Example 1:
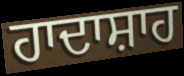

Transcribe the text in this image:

ਹਾਦਾਸ਼ਾਹ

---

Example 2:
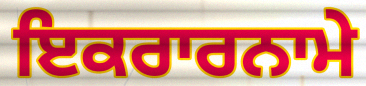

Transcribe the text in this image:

ਇਕਰਾਰਨਾਮੇ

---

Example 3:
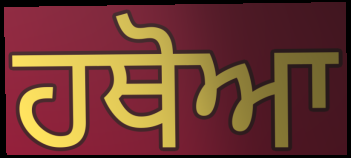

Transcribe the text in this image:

ਹਥੋਆ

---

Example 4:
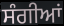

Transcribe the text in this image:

ਸੰਗੀਆਂ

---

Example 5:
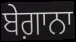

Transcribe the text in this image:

ਬੇਗ਼ਾਨਾ